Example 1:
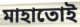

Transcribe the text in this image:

মাহাতোই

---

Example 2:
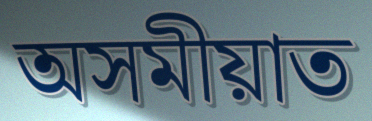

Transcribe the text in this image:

অসমীয়াত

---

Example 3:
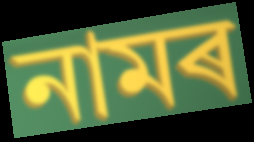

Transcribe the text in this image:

নামৰ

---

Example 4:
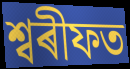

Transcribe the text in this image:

শ্বৰীফত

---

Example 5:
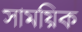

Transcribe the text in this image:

সাময়িক